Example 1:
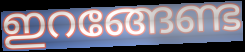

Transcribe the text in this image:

ഇറങ്ങേണ്ട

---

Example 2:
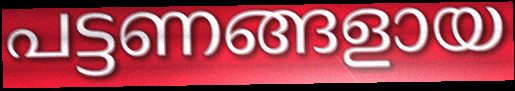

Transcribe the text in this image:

പട്ടണങ്ങളായ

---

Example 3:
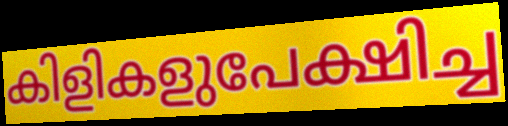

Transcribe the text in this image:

കിളികളുപേക്ഷിച്ച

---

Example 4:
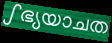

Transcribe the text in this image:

ഽഭ്യയാചത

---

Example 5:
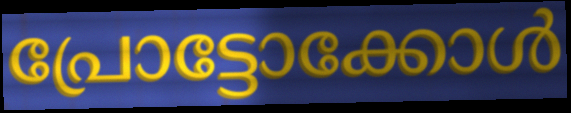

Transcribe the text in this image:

പ്രോട്ടോക്കോൾ